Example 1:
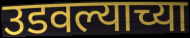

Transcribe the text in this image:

उडवल्याच्या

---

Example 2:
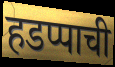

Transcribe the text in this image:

हडप्पाची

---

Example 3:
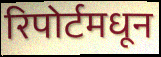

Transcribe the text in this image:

रिपोर्टमधून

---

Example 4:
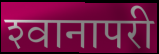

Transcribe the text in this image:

श्वानापरी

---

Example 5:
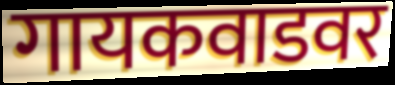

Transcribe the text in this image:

गायकवाडवर